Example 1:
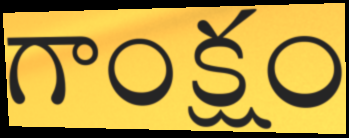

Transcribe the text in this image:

గాంక్షం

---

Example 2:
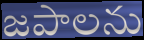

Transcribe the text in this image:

జపాలను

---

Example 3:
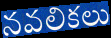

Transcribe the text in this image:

నవలికలు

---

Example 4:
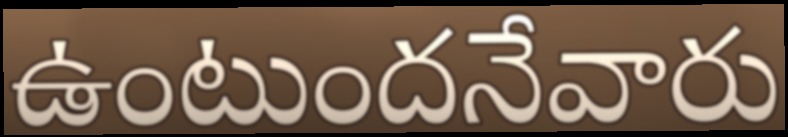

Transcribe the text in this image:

ఉంటుందనేవారు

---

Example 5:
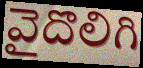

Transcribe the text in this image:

వైదొలిగి